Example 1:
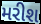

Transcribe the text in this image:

મરીશ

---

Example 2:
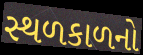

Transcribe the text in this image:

સ્થળકાળનો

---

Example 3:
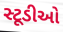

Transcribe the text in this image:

સ્ટૂડીઓ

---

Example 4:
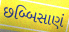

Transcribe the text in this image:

છબ્બિસાણં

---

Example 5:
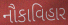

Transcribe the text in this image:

નૌકાવિહાર